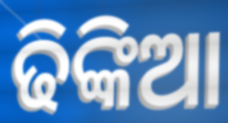
ଢିଙ୍କିଆ